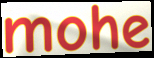
mohe